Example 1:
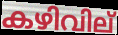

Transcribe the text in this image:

കഴിവില്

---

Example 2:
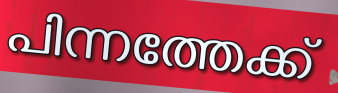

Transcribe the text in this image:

പിന്നത്തേക്ക്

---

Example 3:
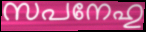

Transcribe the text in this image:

സപനേഹു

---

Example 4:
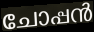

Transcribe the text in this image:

ചോപ്പൻ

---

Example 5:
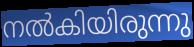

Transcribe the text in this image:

നൽകിയിരുന്നു